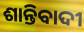
ଶାନ୍ତିବାଦୀ